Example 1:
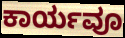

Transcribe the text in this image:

ಕಾರ್ಯವೂ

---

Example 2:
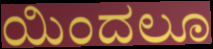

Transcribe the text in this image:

ಯಿಂದಲೂ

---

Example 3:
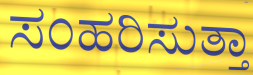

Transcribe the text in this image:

ಸಂಹರಿಸುತ್ತಾ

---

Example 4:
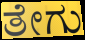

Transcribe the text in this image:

ತೇಗು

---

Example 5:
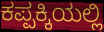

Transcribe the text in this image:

ಕಪ್ಪಕ್ಕಿಯಲ್ಲಿ